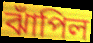
ঝাঁপিল